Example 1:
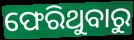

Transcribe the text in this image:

ଫେରିଥୁବାରୁ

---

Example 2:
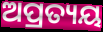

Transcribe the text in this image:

ଅପ୍ରତ୍ୟୟ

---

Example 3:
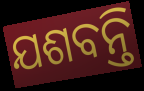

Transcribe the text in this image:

ଯଶବନ୍ତି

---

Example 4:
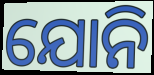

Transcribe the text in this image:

ଯୋନି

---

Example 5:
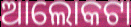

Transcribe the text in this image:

ଆଲୋକଟା